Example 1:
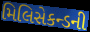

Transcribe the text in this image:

મિલિસેકન્ડની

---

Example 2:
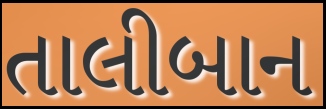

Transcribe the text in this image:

તાલીબાન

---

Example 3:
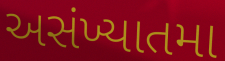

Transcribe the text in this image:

અસંખ્યાતમા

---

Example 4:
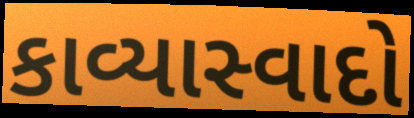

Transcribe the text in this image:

કાવ્યાસ્વાદો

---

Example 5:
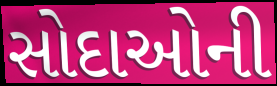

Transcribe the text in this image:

સોદાઓની